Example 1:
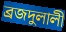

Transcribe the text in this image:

ব্রজদুলালী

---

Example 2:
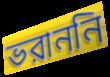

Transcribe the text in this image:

ভরাননি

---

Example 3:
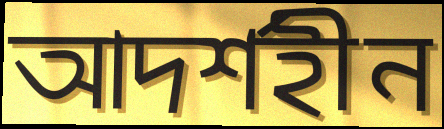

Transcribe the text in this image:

আদর্শহীন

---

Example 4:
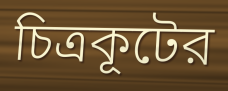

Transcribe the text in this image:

চিত্রকূটের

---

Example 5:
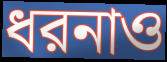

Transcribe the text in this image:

ধরনাও